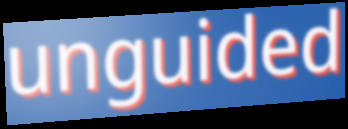
unguided